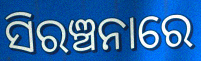
ସିରଞ୍ଚନାରେ